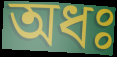
অধঃ